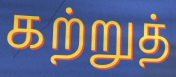
கற்றுத்